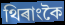
থিৰাংকৈ